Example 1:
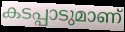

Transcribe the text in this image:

കടപ്പാടുമാണ്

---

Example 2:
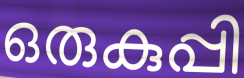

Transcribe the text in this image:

ഒരുകുപ്പി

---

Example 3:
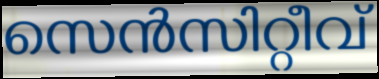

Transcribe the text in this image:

സെൻസിറ്റീവ്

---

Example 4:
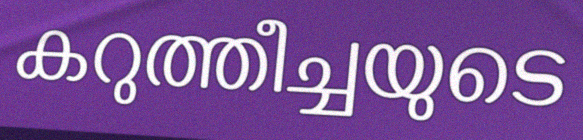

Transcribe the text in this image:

കറുത്തീച്ചയുടെ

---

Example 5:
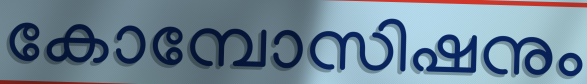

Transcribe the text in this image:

കോമ്പോസിഷനും